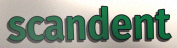
scandent